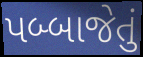
પબ્બાજેતું